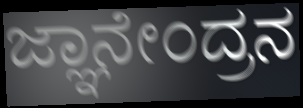
ಜ್ಞಾನೇಂದ್ರನ